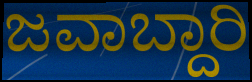
ಜವಾಬ್ದಾರಿ